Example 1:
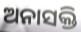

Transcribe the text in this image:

ଅନାସକ୍ତି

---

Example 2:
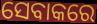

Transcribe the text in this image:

ସେବାକରେ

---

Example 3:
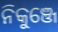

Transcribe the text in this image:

ନିକୁଞ୍ଜେ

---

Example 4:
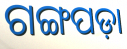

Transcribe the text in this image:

ଗଙ୍ଗପଡ଼ା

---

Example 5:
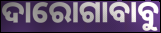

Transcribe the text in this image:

ଦାରୋଗାବାବୁ